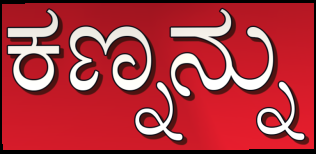
ಕಣ್ನನ್ನು